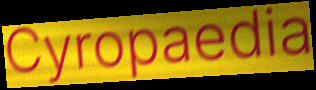
Cyropaedia